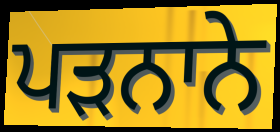
ਪੜਨਾਨੇ